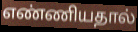
எண்ணியதால்